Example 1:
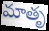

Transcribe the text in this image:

మాతృ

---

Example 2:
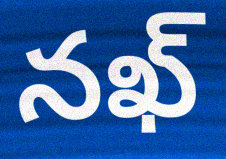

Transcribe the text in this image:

నఖ్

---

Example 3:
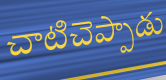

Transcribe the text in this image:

చాటిచెప్పాడు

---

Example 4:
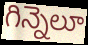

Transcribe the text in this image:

గిన్నెలూ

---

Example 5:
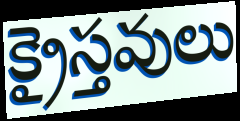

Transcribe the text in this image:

క్రైస్తవులు